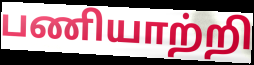
பணியாற்றி